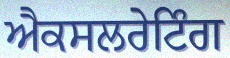
ਐਕਸਲਰੇਟਿੰਗ